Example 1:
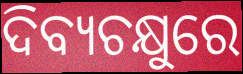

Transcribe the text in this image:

ଦିବ୍ୟଚକ୍ଷୁରେ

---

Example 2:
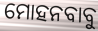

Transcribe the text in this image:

ମୋହନବାବୁ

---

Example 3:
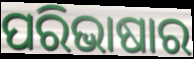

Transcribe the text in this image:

ପରିଭାଷାର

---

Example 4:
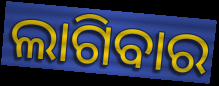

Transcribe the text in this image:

ଲାଗିବାର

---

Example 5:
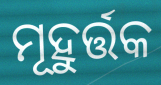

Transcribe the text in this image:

ମୂହୁର୍ତ୍ତକ